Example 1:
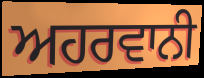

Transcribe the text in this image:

ਅਹਰਵਾਨੀ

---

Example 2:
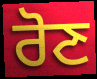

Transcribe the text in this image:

ਰੋਣ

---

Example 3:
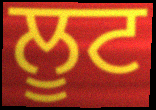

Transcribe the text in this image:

ਲੂਟ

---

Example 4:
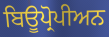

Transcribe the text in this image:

ਬਿਊਪ੍ਰੋਪੀਅਨ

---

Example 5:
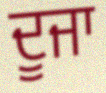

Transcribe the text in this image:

ਦੂਜਾ